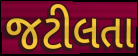
જટીલતા